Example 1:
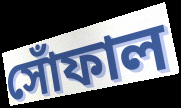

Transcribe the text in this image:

সোঁফাল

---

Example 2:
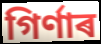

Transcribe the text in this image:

গিৰ্ণাৰ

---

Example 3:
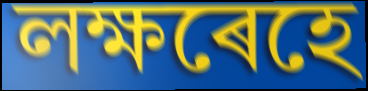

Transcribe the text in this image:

লক্ষৰেহে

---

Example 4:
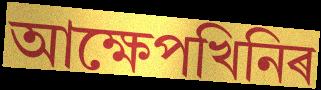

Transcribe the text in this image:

আক্ষেপখিনিৰ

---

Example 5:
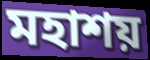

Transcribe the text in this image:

মহাশয়